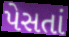
પેસતાં